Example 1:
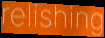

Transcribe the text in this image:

relishing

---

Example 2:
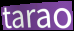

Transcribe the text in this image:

tarao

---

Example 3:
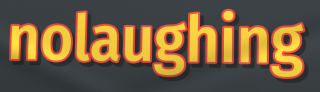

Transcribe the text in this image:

nolaughing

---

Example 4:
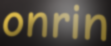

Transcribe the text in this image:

onrin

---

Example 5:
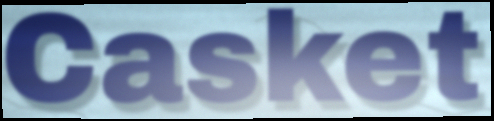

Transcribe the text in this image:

Casket